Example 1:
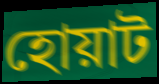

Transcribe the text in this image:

হোয়াট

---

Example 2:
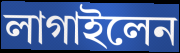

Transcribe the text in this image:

লাগাইলেন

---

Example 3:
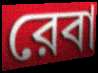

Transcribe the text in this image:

রেবা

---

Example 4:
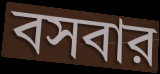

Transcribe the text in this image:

বসবার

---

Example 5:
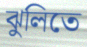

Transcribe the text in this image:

ঝুলিতে